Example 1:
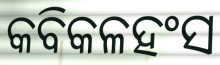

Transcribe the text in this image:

କବିକଳହଂସ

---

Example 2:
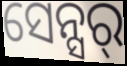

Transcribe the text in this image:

ସେନ୍ସର୍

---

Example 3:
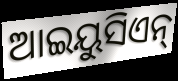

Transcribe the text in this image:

ଆଇୟୁସିଏନ୍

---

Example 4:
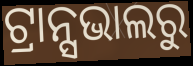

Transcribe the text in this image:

ଟ୍ରାନ୍ସଭାଲରୁ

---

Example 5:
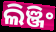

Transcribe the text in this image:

ଲିଞ୍ଜିଂ